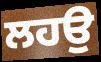
ਲਹਉ